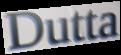
Dutta